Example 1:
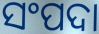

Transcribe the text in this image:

ସଂପଦା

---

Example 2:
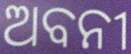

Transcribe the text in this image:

ଅବନୀ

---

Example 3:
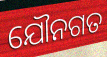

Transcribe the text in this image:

ଯୌନଗତ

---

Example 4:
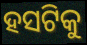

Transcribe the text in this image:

ହସଟିକୁ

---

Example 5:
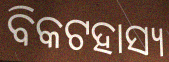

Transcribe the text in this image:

ବିକଟହାସ୍ୟ